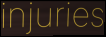
injuries